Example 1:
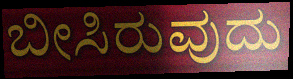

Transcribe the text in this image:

ಬೀಸಿರುವುದು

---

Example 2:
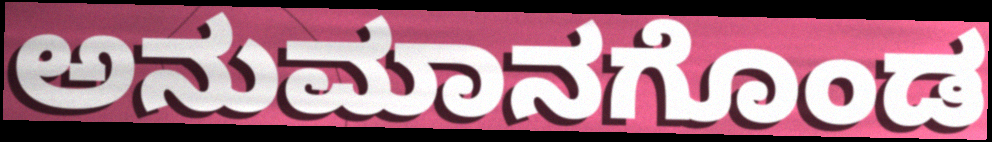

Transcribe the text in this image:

ಅನುಮಾನಗೊಂಡ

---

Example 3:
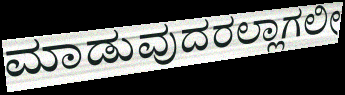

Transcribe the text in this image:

ಮಾಡುವುದರಲ್ಲಾಗಲೀ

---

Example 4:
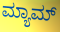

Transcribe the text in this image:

ಮ್ಯಾಮ್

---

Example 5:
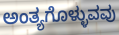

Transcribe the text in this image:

ಅಂತ್ಯಗೊಳ್ಳುವವು